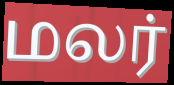
மலர்